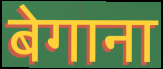
बेगाना